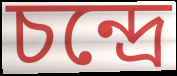
চন্দ্রে